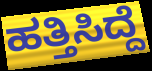
ಹತ್ತಿಸಿದ್ದೆ